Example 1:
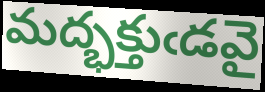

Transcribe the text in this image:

మద్భక్తుఁడవై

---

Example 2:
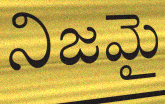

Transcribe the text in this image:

నిజమై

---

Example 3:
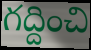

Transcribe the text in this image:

గద్దించి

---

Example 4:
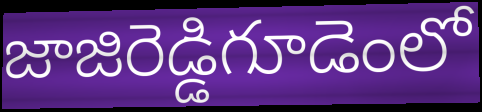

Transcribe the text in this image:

జాజిరెడ్డిగూడెంలో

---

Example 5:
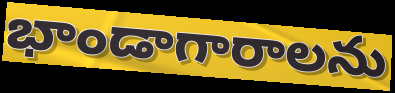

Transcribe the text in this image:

భాండాగారాలను